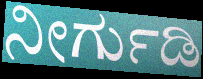
ನೀರ್ಗುಡಿ